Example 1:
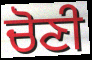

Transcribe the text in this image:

ਚੋਣੀ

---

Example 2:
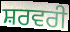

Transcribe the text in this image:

ਸ਼ਰਵਰੀ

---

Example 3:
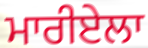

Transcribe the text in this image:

ਮਾਰੀਏਲਾ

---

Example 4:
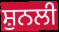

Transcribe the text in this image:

ਸ਼ੁਨਲੀ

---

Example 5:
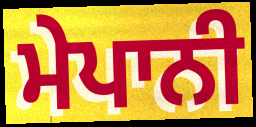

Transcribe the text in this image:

ਮੇਪਾਨੀ